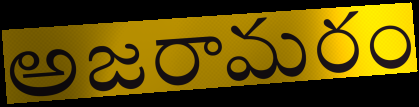
అజరామరం